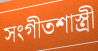
সংগীতশাস্ত্রী